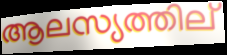
ആലസ്യത്തില്